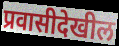
प्रवासीदेखील